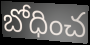
బోధించ